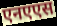
एनएएस